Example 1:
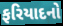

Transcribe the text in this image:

ફરિયાદનો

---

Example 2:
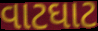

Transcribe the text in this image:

વાટઘાટ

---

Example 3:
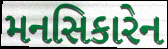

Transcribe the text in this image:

મનસિકારેન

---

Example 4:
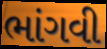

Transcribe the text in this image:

ભાંગવી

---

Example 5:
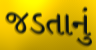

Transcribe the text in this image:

જડતાનું